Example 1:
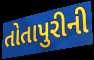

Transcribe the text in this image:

તોતાપુરીની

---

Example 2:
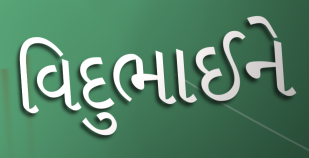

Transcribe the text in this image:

વિદુભાઈને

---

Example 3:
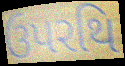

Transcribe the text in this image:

ઉપરથિ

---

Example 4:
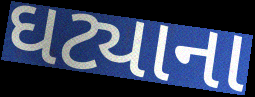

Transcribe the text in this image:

ઘટ્યાના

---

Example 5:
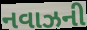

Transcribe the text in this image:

નવાઝની